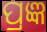
ପ୍ରଜ୍ଞ